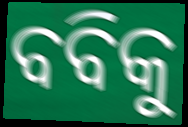
ବବିକୁ